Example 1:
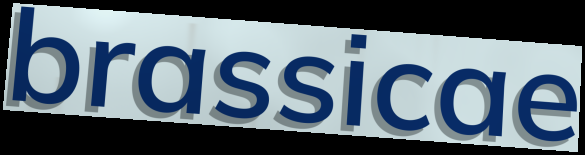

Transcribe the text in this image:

brassicae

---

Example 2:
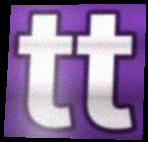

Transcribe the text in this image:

tt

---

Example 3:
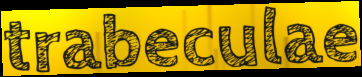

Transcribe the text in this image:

trabeculae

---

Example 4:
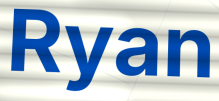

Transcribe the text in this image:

Ryan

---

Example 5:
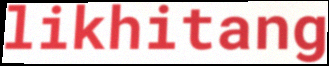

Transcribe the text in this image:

likhitang